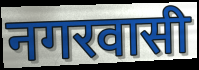
नगरवासी